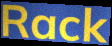
Rack